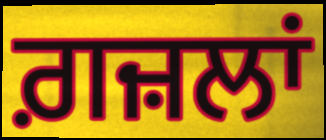
ਗ਼ਜ਼ਲਾਂ